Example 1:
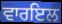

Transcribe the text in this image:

ਵਾਰਇਲ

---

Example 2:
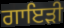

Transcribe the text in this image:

ਗਾਇੜੀ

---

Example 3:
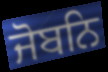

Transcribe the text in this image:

ਜੋਬਨਿ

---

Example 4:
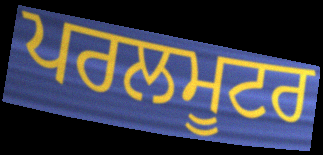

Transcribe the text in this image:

ਪਰਲਮੂਟਰ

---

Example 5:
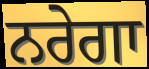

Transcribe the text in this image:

ਨਰੇਗਾ